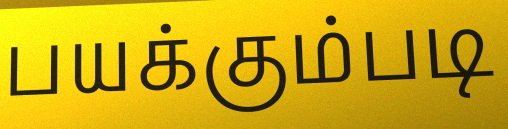
பயக்கும்படி